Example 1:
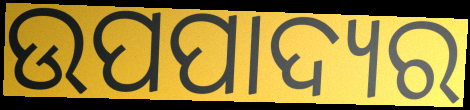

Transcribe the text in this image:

ଉପପାଦ୍ୟର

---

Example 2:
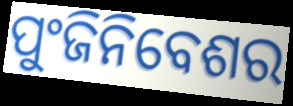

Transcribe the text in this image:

ପୁଂଜିନିବେଶର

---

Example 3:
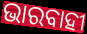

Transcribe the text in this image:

ଭାରବାହୀ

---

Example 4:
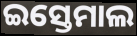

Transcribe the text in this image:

ଇସ୍ତେମାଲ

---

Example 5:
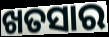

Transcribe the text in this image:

ଖତସାର